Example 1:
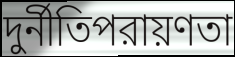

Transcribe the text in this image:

দুর্নীতিপরায়ণতা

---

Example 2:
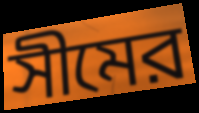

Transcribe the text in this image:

সীমের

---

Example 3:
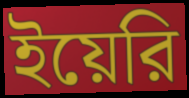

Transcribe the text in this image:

ইয়েরি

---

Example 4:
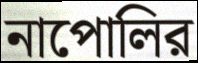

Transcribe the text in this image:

নাপোলির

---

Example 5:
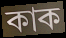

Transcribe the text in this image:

কাক